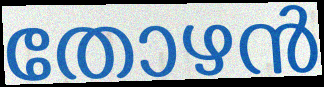
തോഴൻ